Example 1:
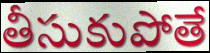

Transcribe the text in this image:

తీసుకుపోతే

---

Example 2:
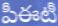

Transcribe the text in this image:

పీఈటీ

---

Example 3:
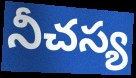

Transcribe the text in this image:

నీచస్య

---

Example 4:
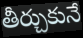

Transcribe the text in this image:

తీర్చుకునే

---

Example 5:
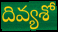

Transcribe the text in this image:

దివ్యశో